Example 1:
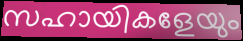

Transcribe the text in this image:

സഹായികളേയും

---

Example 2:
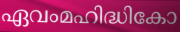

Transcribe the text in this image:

ഏവംമഹിദ്ധികോ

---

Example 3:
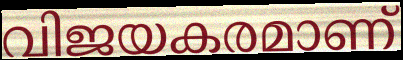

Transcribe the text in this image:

വിജയകരമാണ്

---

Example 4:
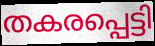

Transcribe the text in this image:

തകരപ്പെട്ടി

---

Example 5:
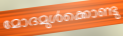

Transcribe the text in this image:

മോദമുൾക്കൊണ്ടു